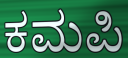
ಕಮಪಿ